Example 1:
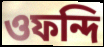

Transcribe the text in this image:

ওফন্দি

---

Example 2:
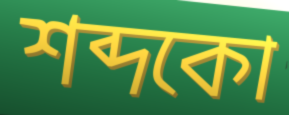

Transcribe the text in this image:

শব্দকো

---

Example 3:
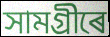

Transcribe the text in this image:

সামগ্ৰীৰে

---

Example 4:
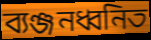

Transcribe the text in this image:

ব্যঞ্জনধ্বনিত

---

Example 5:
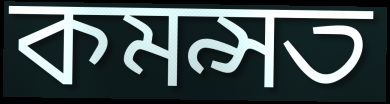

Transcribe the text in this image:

কমন্সত